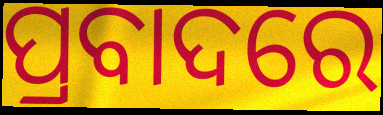
ପ୍ରବାଦରେ